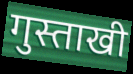
गुस्ताखी